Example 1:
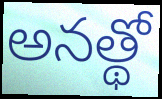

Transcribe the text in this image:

అనత్థో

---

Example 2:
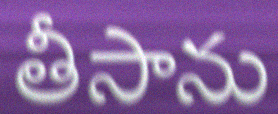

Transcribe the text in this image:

తీసాను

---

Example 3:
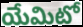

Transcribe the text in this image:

యేమిటో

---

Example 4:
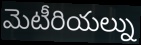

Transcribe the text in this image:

మెటీరియల్ను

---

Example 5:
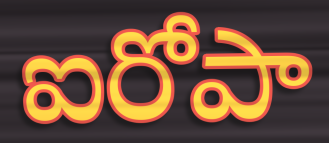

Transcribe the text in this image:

ఐరోపా